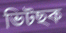
ভিটছক